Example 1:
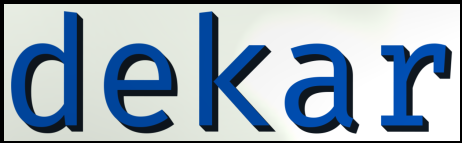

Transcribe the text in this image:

dekar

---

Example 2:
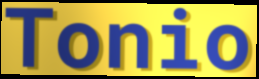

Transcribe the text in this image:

Tonio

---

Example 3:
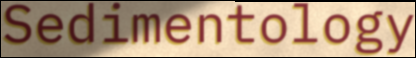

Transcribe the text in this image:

Sedimentology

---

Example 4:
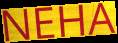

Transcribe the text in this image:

NEHA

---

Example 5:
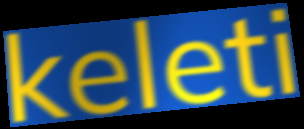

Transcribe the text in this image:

keleti